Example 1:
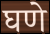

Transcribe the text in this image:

घणे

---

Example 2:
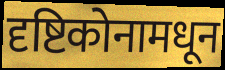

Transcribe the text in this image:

दृष्टिकोनामधून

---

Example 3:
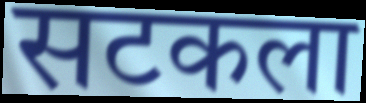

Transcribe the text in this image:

सटकला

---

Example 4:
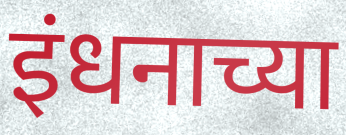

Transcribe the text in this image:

इंधनाच्या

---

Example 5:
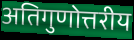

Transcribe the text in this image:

अतिगुणोत्तरीय